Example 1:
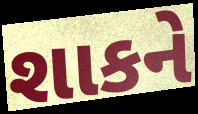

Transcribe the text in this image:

શાકને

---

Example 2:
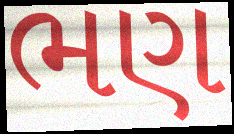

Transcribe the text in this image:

ભણ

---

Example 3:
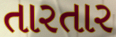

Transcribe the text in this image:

તારતાર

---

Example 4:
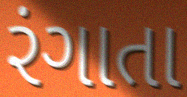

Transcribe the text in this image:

રંગાતા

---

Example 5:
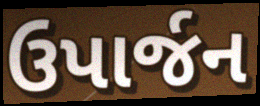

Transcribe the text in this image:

ઉપાર્જન